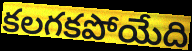
కలగకపోయేది